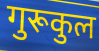
गुरूकुल